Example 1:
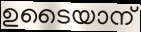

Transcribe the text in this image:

ഉടൈയാന്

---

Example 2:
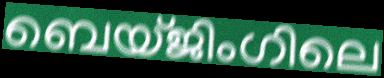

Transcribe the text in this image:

ബെയ്ജിംഗിലെ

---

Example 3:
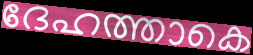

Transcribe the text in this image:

ദേഹത്താകെ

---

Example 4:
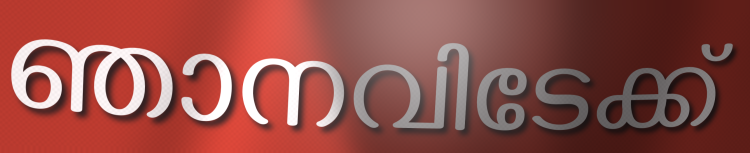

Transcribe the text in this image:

ഞാനവിടേക്ക്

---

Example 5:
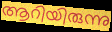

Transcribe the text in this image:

ആറിയിരുന്നു